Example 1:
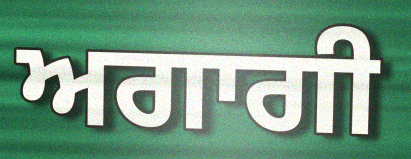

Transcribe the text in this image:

ਅਗਾਗੀ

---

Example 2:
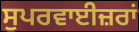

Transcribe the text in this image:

ਸੁਪਰਵਾਈਜ਼ਰਾਂ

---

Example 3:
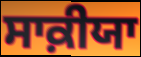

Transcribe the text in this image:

ਸਾਕ਼ੀਯਾ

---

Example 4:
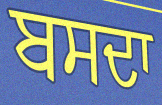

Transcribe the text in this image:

ਬਸਦਾ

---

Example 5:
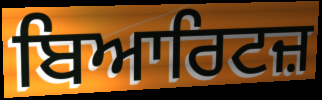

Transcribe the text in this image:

ਬਿਆਰਿਟਜ਼